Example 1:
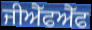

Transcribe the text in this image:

ਜੀਐੱਫਐੱਫ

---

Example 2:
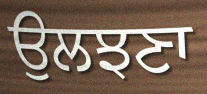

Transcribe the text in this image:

ਉਲਝਣਾ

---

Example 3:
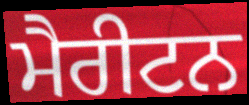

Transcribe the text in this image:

ਮੈਰੀਟਨ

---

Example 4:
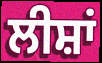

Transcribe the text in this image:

ਲੀਸ਼ਾਂ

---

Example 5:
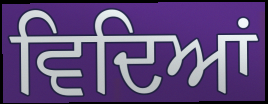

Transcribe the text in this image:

ਵਿਦਿਆਂ